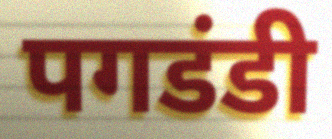
पगडंडी